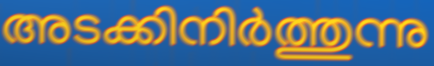
അടക്കിനിർത്തുന്നു